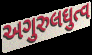
અગુરુલઘુત્વ